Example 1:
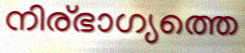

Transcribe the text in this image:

നിര്ഭാഗ്യത്തെ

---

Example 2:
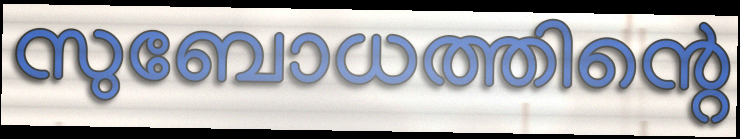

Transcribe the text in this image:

സുബോധത്തിന്റെ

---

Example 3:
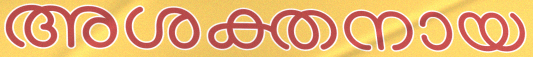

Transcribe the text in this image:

അശക്തനായ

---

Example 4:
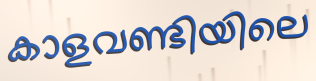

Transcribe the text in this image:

കാളവണ്ടിയിലെ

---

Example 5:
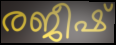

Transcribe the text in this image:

രജീഷ്